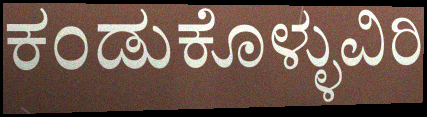
ಕಂಡುಕೊಳ್ಳುವಿರಿ